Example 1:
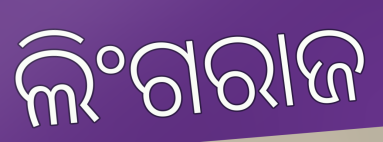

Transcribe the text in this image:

ଲିଂଗରାଜ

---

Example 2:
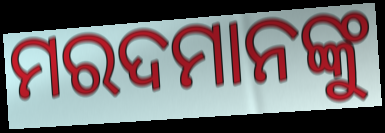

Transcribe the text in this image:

ମରଦମାନଙ୍କୁ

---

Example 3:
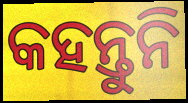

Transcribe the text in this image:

କହନ୍ତୁନି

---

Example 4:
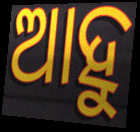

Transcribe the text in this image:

ଆହୁ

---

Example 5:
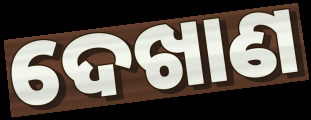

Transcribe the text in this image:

ଦେଖାଣ